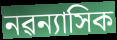
নৱন্যাসিক